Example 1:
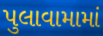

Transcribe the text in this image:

પુલાવામામાં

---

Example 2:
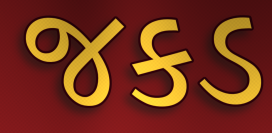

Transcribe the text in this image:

જકડ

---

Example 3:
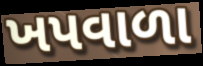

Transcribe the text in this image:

ખપવાળા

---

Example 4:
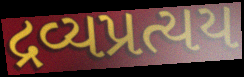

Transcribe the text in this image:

દ્રવ્યપ્રત્યય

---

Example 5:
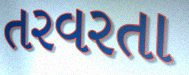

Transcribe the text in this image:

તરવરતા